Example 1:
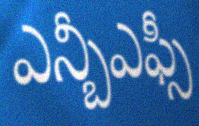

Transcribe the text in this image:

ఎన్బీఎఫ్సీ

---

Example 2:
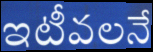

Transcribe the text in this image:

ఇటీవలనే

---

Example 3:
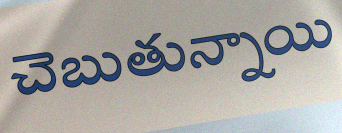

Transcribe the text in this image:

చెబుతున్నాయి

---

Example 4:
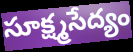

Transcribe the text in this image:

సూక్ష్మసేద్యం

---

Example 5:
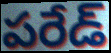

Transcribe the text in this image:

పరేడ్